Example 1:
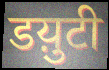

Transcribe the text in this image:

डय़ुटी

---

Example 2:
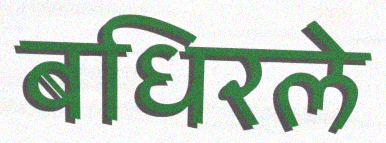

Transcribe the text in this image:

बधिरले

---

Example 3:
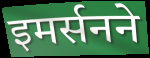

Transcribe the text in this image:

इमर्सनने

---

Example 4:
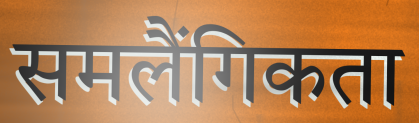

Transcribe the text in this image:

समलैंगिकता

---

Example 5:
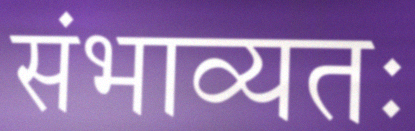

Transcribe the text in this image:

संभाव्यतः